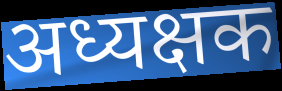
अध्यक्षक